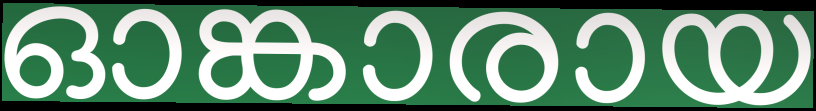
ഓങ്കാരായ